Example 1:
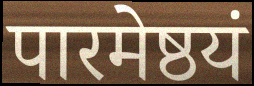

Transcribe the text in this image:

पारमेष्ठयं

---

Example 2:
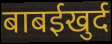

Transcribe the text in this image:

बाबईखुर्द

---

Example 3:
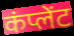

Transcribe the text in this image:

कंप्लेंट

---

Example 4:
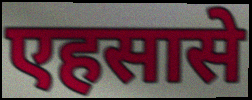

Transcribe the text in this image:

एहसासे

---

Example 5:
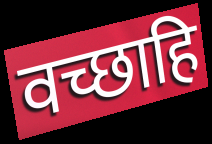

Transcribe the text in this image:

वच्छाहि